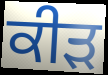
ਕੀੜ